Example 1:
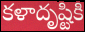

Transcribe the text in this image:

కళాదృష్టికి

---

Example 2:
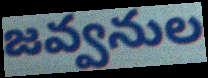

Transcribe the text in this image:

జవ్వనుల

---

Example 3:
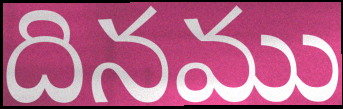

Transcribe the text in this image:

దినము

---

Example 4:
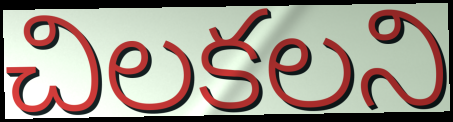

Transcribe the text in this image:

చిలకలని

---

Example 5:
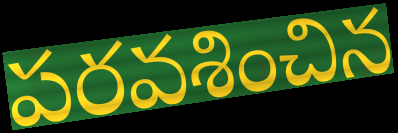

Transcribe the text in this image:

పరవశించిన